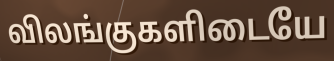
விலங்குகளிடையே